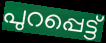
പുറപ്പെട്ട്